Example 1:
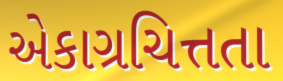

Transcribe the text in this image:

એકાગ્રચિત્તતા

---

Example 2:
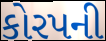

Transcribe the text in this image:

કોરપની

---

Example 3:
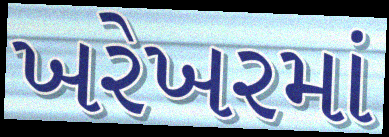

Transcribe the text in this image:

ખરેખરમાં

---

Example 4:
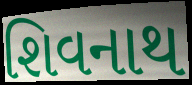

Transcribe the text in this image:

શિવનાથ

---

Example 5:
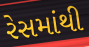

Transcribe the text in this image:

રેસમાંથી